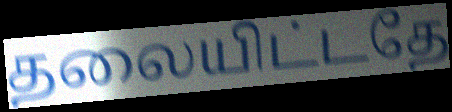
தலையிட்டதே